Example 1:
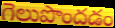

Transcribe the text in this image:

గెలుపొందడం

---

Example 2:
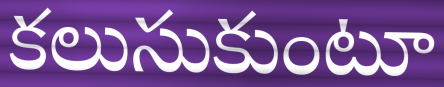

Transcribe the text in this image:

కలుసుకుంటూ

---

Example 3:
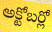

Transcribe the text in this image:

అక్టోబర్లో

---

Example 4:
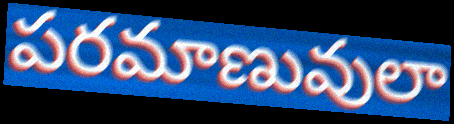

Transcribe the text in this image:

పరమాణువులా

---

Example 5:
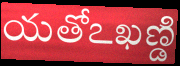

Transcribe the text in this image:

యతోఽఖణ్డి